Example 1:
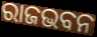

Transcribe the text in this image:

ରାଜଭବନ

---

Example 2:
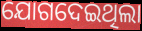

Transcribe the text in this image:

ଯୋଗଦେଇଥିଲା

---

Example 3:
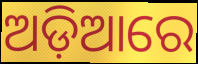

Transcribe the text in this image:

ଅଡ଼ିଆରେ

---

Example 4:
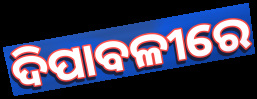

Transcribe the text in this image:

ଦିପାବଳୀରେ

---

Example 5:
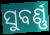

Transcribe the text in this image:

ସୁବର୍ଣ୍ଣ